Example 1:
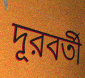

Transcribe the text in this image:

দূরবর্তী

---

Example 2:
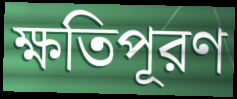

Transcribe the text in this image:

ক্ষতিপূরণ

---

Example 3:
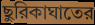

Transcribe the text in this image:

ছুরিকাঘাতের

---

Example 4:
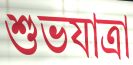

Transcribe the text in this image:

শুভযাত্রা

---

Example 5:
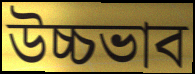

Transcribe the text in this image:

উচ্চভাব